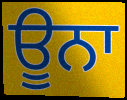
ਊਨਾ